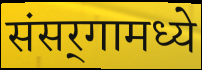
संसर्गामध्ये